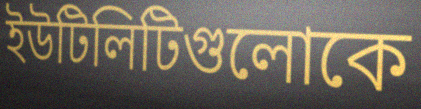
ইউটিলিটিগুলোকে